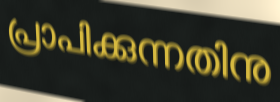
പ്രാപിക്കുന്നതിനു